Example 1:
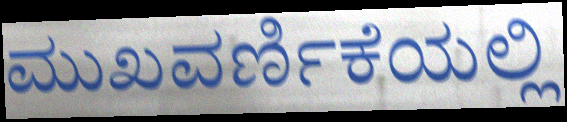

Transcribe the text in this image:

ಮುಖವರ್ಣಿಕೆಯಲ್ಲಿ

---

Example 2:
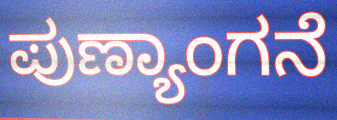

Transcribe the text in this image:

ಪುಣ್ಯಾಂಗನೆ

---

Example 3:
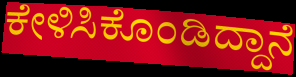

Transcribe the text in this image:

ಕೇಳಿಸಿಕೊಂಡಿದ್ದಾನೆ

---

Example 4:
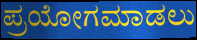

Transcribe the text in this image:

ಪ್ರಯೋಗಮಾಡಲು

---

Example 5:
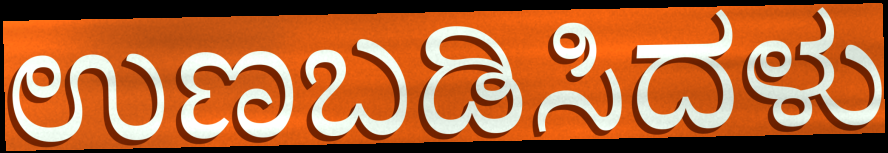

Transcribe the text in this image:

ಉಣಬಡಿಸಿದಳು